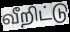
வீறிட்டு